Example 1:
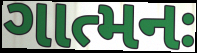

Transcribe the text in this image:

ગાત્મનઃ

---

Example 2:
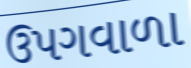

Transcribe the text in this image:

ઉપગવાળા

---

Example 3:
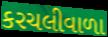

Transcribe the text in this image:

કરચલીવાળા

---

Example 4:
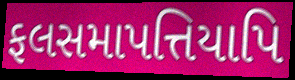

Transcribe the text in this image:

ફલસમાપત્તિયાપિ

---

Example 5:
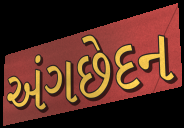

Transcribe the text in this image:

અંગછેદન